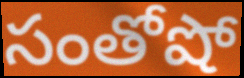
సంతోషో